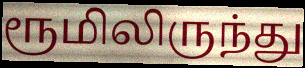
ரூமிலிருந்து